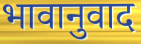
भावानुवाद